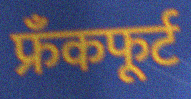
फ्रँकफूर्ट